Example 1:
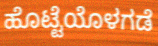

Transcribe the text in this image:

ಹೊಟ್ಟೆಯೊಳಗಡೆ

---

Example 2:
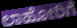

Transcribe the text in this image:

ಲಾಹೋರಿಗೆ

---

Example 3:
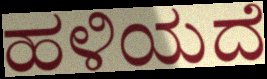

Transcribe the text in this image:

ಹಳಿಯದೆ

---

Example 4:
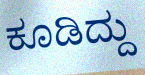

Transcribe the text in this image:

ಕೂಡಿದ್ದು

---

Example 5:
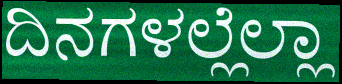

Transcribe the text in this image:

ದಿನಗಳಲ್ಲೆಲ್ಲಾ